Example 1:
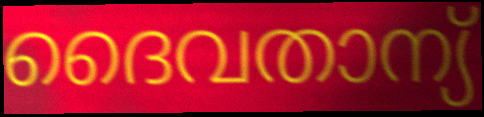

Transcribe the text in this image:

ദൈവതാന്യ്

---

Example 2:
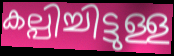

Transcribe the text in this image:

കല്പിച്ചിട്ടുള്ള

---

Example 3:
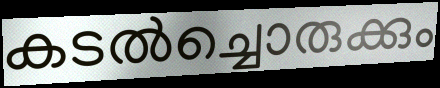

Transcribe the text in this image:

കടൽച്ചൊരുക്കും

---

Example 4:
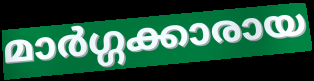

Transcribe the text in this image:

മാർഗ്ഗക്കാരായ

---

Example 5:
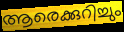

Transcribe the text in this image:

ആരെക്കുറിച്ചും